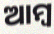
ଆମ୍ୱ